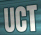
UCT